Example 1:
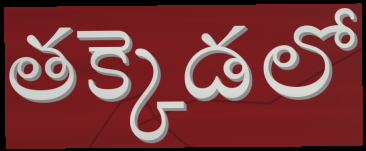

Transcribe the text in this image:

తక్కెడలో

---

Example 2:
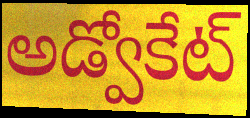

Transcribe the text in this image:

అడ్వోకేట్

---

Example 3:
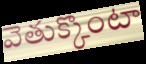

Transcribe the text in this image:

వెతుక్కొంటా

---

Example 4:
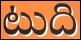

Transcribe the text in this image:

టుది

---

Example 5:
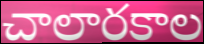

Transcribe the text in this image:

చాలారకాల